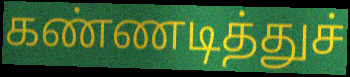
கண்ணடித்துச்